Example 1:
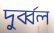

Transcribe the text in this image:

দুৰ্ব্বল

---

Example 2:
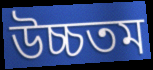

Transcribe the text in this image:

উচ্চতম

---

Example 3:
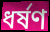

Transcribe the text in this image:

ধৰ্ষণ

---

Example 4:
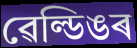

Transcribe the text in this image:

ৱেল্ডিঙৰ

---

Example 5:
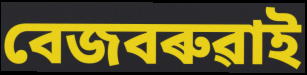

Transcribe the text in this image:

বেজবৰুৱাই